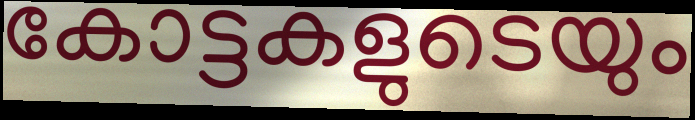
കോട്ടകളുടെയും